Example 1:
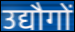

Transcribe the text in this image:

उद्यौगों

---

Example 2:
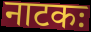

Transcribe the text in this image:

नाटकः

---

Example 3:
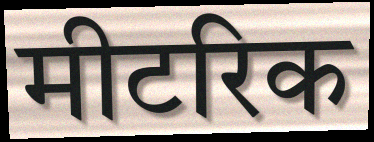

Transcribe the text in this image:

मीटरिक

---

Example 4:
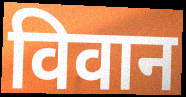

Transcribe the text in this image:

विवान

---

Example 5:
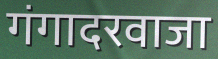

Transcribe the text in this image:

गंगादरवाजा